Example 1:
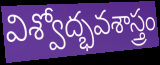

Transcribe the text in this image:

విశ్వోద్భవశాస్త్రం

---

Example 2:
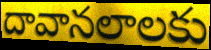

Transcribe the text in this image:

దావానలాలకు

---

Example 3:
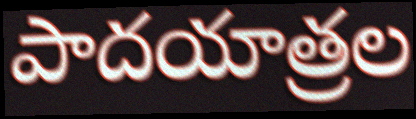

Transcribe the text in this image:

పాదయాత్రల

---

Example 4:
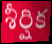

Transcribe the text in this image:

శీర్షిక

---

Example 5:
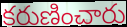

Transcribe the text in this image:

కరుణించారు